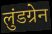
लुंडग्रेन